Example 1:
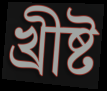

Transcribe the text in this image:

খ্ৰীষ্ট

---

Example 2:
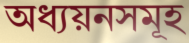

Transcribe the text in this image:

অধ্যয়নসমূহ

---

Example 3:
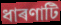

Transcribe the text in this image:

ধাৰণাটি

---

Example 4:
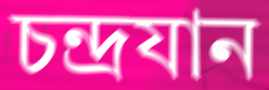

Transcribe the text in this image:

চন্দ্ৰযান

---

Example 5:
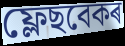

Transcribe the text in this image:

ফ্লেছবেকৰ